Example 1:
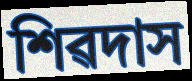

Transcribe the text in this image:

শিৱদাস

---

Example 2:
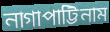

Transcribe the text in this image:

নাগাপাট্টিনাম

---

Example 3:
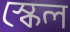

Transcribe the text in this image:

স্কেল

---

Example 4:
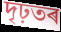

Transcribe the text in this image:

দৃঢ়তৰ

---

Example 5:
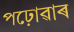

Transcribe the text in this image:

পঢ়োৱাৰ